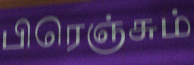
பிரெஞ்சும்